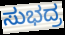
ಸುಭದ್ರ